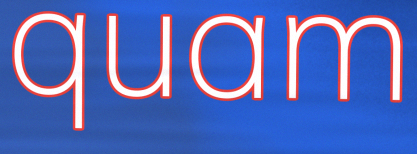
quam